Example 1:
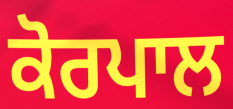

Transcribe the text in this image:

ਕੋਰਪਾਲ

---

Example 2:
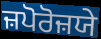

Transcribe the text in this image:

ਜ਼ਪੋਰੋਜ਼ਯੇ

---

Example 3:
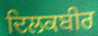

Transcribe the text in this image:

ਦਿਲਕਬੀਰ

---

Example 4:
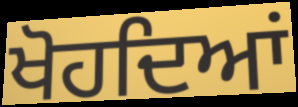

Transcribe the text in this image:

ਖੋਹਦਿਆਂ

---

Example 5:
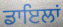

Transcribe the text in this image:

ਡਾਇਲਾਂ